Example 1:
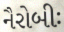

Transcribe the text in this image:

નૈરોબીઃ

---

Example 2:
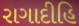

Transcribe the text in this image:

રાગાદીહિ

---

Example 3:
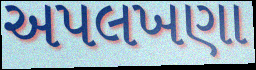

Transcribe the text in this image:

અપલખણા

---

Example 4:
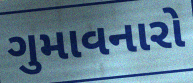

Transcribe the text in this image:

ગુમાવનારો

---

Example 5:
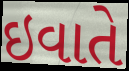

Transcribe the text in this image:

ઇવાતે